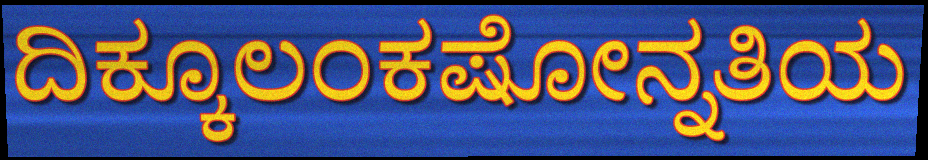
ದಿಕ್ಕೂಲಂಕಷೋನ್ನತಿಯ